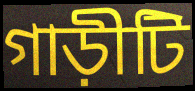
গাড়ীটি